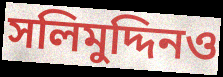
সলিমুদ্দিনও